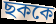
ছককে